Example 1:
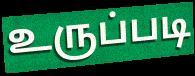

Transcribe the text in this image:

உருப்படி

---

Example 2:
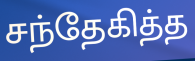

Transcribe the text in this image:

சந்தேகித்த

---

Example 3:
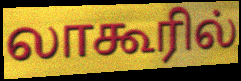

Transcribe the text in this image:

லாகூரில்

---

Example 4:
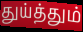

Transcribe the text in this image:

துய்த்தும்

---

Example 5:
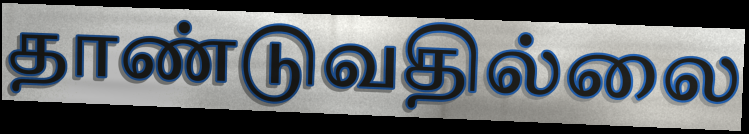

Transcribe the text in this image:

தாண்டுவதில்லை